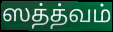
ஸத்த்வம்